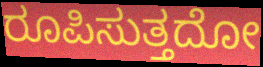
ರೂಪಿಸುತ್ತದೋ